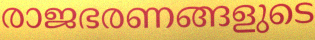
രാജഭരണങ്ങളുടെ